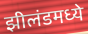
झीलंडमध्ये